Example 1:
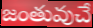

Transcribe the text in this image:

జంతువుచే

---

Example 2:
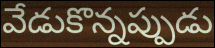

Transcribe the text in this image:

వేడుకొన్నప్పుడు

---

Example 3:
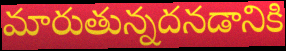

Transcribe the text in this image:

మారుతున్నదనడానికి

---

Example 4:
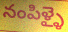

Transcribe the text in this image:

నంపిళ్ళై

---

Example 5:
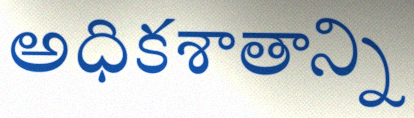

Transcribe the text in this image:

అధికశాతాన్ని